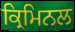
ਕ੍ਰਿਮਿਨਲ